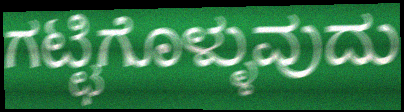
ಗಟ್ಟಿಗೊಳ್ಳುವುದು